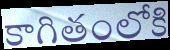
కాగితంలోకి